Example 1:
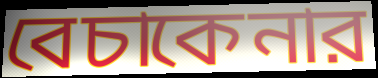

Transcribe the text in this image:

বেচাকেনার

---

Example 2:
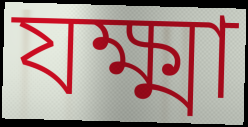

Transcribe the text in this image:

যক্ষ্মা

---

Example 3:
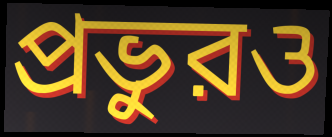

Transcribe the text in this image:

প্রভুরও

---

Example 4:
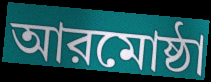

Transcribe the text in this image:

আরমোষ্ঠা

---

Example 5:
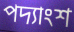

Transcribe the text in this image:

পদ্যাংশ